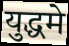
युद्धमे